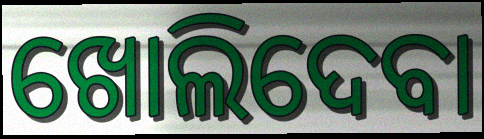
ଖୋଲିଦେବା